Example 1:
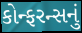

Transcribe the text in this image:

કોન્ફરન્સનું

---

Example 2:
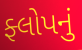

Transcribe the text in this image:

ફ્લોપનું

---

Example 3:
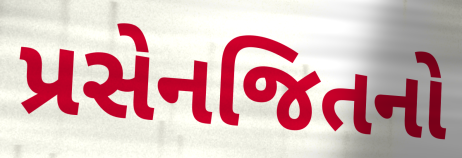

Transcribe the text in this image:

પ્રસેનજિતનો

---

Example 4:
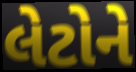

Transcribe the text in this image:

લેટોને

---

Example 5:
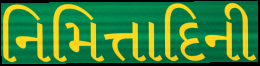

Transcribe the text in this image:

નિમિત્તાદિની